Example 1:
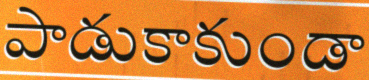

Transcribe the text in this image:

పాడుకాకుండా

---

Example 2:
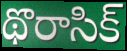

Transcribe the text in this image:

థొరాసిక్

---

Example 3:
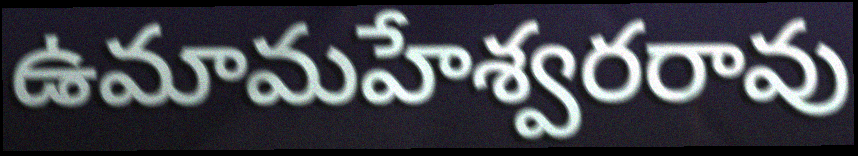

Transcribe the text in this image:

ఉమామహేశ్వరరావు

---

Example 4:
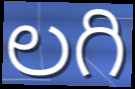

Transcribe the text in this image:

లగి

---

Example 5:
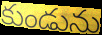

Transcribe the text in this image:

కుండును